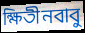
ক্ষিতীনবাবু